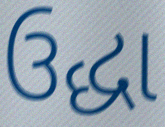
ઉદ્ધા